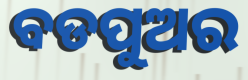
ବଡପୁଅର